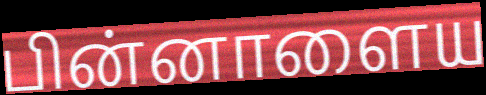
பின்னாளைய